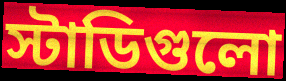
স্টাডিগুলো